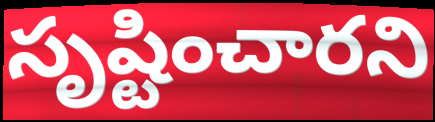
సృష్టించారని